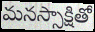
మనస్సాక్షితో